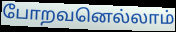
போறவனெல்லாம்